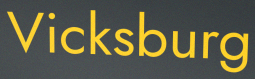
Vicksburg